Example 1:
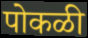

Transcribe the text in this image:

पोकळी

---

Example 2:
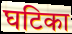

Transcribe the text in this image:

घटिका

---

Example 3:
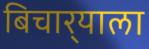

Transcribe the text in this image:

बिचार्‍याला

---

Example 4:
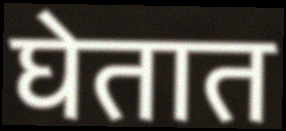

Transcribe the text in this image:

घेतात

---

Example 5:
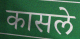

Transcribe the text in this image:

कासले